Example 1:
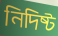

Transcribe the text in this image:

নিদিষ্ট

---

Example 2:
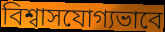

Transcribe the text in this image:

বিশ্বাসযোগ্যভাবে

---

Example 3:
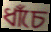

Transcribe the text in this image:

ধাঁচে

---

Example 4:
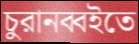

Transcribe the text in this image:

চুরানব্বইতে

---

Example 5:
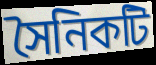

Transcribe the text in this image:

সৈনিকটি